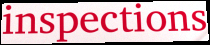
inspections